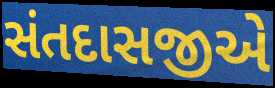
સંતદાસજીએ